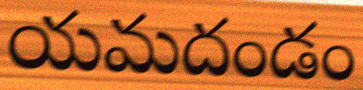
యమదండం